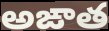
అఙాత